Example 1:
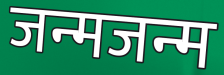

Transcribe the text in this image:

जन्मजन्म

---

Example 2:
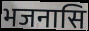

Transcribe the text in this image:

भजनासि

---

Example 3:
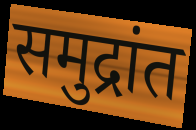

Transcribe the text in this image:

समुद्रांत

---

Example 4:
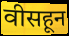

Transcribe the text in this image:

वीसहून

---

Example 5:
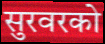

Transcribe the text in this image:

सुरवरको